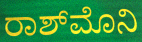
ರಾಶ್‌ಮೊನಿ